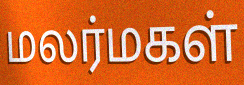
மலர்மகள்